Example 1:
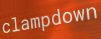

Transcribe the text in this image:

clampdown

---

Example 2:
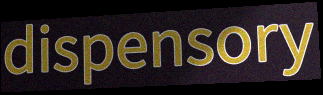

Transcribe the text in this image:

dispensory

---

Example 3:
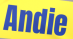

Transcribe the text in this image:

Andie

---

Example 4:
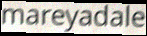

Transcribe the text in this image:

mareyadale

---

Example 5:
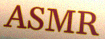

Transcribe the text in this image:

ASMR